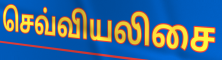
செவ்வியலிசை